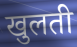
खुलती